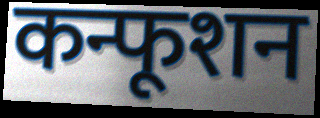
कन्फूशन